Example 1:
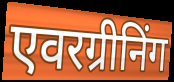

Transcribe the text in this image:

एवरग्रीनिंग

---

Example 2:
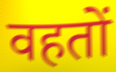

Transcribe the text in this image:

वहतों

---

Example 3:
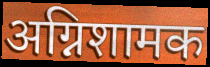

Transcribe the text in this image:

अग्निशामक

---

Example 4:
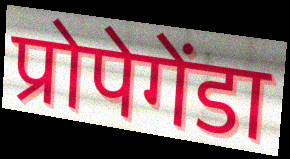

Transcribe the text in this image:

प्रोपेगेंडा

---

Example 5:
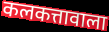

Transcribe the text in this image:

कलकत्तावाला